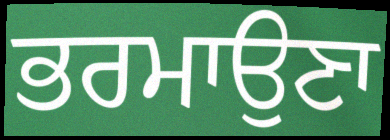
ਭਰਮਾਉਣਾ